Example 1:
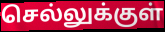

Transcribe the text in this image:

செல்லுக்குள்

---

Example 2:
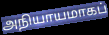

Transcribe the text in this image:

அநியாயமாகப்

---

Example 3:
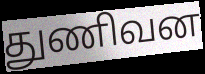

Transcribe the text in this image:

துணிவன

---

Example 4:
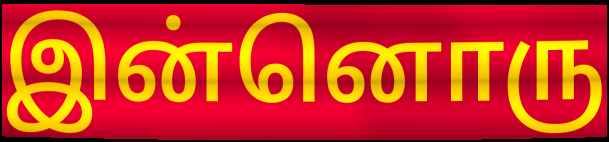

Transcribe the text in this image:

இன்னொரு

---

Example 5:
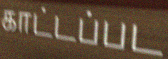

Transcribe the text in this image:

காட்டப்பட